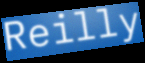
Reilly